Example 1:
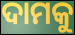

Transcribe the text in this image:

ଦାମକୁ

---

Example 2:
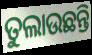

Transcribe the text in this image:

ତୁଲାଉଛନ୍ତି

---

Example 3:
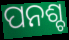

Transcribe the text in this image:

ପନଶ୍ଚ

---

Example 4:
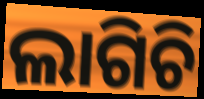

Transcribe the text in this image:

ଲାଗିଚି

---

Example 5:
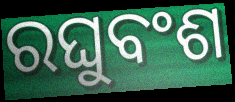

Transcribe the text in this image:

ରଘୁବଂଶ